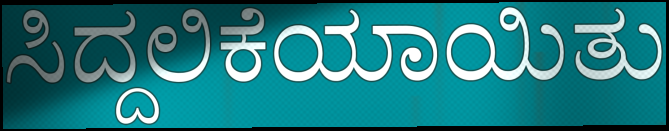
ಸಿದ್ದಲಿಕೆಯಾಯಿತು